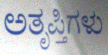
ಅತೃಪ್ತಿಗಳು